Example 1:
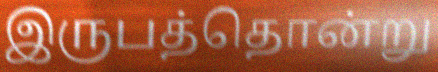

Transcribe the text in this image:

இருபத்தொன்று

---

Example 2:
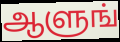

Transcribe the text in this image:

ஆளுங்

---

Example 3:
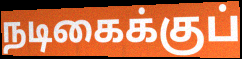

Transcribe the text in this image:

நடிகைக்குப்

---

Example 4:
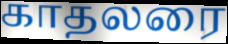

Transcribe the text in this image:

காதலரை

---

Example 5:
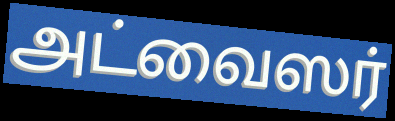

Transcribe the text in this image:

அட்வைஸர்